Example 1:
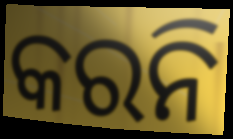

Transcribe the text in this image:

କରନି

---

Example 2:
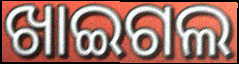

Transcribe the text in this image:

ଖାଇଗଲ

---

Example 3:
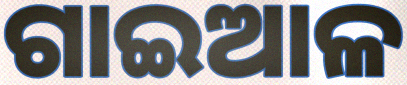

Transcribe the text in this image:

ଗାଇଆଳ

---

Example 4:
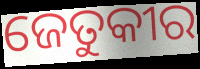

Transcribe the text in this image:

ଜେତୁକୀର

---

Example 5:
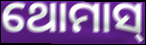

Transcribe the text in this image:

ଥୋମାସ୍